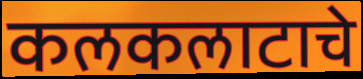
कलकलाटाचे